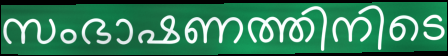
സംഭാഷണത്തിനിടെ